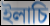
ইলাচি